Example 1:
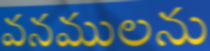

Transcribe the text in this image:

వనములను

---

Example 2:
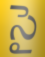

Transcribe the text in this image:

సై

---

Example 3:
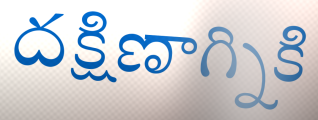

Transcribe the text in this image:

దక్షిణాగ్నికి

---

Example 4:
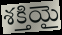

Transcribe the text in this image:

శక్తియై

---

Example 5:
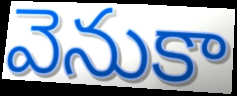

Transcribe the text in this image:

వెనుకా